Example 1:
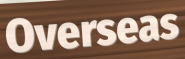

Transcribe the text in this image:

Overseas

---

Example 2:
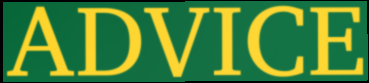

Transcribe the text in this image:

ADVICE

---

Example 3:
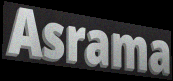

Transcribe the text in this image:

Asrama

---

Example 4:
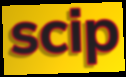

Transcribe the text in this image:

scip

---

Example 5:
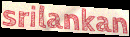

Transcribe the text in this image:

srilankan